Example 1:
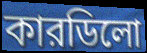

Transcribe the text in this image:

কারডিলো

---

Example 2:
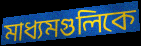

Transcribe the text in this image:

মাধ্যমগুলিকে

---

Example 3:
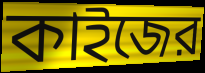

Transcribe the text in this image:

কাইজের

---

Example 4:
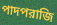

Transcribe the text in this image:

পাদপরাজি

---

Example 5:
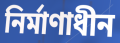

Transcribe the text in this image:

নির্মাণাধীন